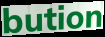
bution